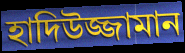
হাদিউজ্জামান